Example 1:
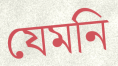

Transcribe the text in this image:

যেমনি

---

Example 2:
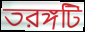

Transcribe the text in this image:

তরঙ্গটি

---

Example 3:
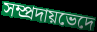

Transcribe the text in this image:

সম্প্রদায়ভেদে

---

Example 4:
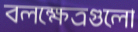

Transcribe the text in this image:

বলক্ষেত্রগুলো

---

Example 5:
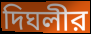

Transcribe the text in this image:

দিঘলীর